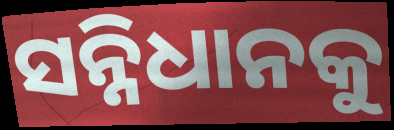
ସନ୍ନିଧାନକୁ